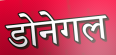
डोनेगल